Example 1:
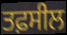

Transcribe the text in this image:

ਤਫ਼ਸੀਲ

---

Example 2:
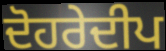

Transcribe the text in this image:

ਦੋਹਰੇਦੀਪ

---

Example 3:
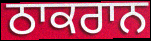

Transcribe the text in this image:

ਠਾਕਰਾਨ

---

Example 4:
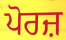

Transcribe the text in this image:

ਪੋਰਜ਼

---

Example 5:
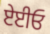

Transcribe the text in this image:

ਏਈਓ